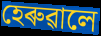
হেৰুৱালে